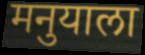
मनुयाला